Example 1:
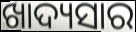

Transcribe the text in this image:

ଖାଦ୍ୟସାର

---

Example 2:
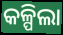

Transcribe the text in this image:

କଳ୍ପିଲା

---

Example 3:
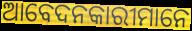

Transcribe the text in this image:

ଆବେଦନକାରୀମାନେ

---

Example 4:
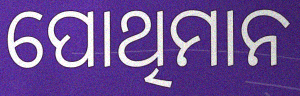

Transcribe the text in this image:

ପୋଥିମାନ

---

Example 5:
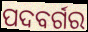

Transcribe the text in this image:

ପଦବର୍ଗର